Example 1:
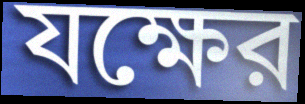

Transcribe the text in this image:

যক্ষের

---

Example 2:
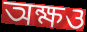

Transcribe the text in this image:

অক্ষও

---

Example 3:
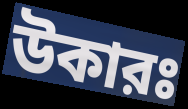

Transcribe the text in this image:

উকারঃ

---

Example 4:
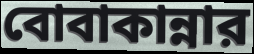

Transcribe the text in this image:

বোবাকান্নার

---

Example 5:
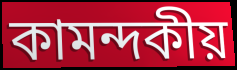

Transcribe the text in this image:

কামন্দকীয়